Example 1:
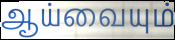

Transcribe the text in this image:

ஆய்வையும்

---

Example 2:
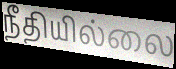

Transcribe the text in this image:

நீதியில்லை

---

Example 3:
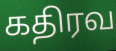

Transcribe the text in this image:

கதிரவ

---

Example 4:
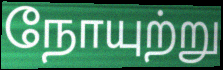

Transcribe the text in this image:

நோயுற்று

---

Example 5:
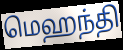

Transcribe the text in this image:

மெஹந்தி